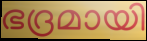
ഭദ്രമായി